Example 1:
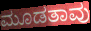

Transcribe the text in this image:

ಮೂಡತಾವು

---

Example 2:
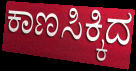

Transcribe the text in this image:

ಕಾಣಸಿಕ್ಕಿದ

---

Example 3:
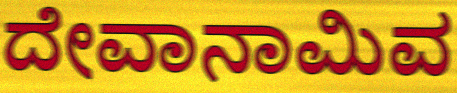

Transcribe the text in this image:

ದೇವಾನಾಮಿವ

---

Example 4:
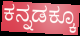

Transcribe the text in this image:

ಕನ್ನಡಕ್ಕೂ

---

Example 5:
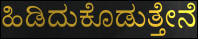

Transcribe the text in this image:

ಹಿಡಿದುಕೊಡುತ್ತೇನೆ